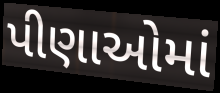
પીણાઓમાં